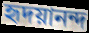
হৃদয়ানন্দ